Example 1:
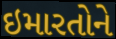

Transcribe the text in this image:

ઇમારતોને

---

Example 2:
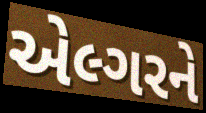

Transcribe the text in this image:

એલ્ગરને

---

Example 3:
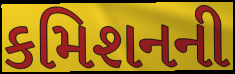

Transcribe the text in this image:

કમિશનની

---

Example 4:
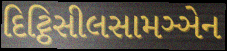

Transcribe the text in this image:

દિટ્ઠિસીલસામઞ્ઞેન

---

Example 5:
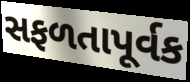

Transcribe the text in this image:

સફળતાપૂર્વક